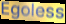
Egoless